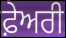
ਫ਼ੇਅਰੀ